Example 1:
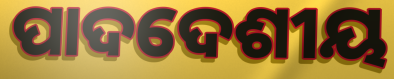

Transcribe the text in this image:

ପାଦଦେଶୀୟ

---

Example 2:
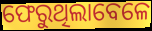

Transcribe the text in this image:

ଫେରୁଥିଲାବେଳେ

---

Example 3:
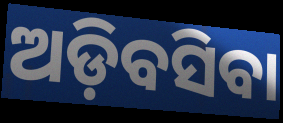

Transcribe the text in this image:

ଅଡ଼ିବସିବା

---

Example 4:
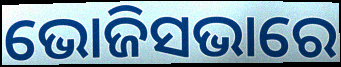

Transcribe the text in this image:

ଭୋଜିସଭାରେ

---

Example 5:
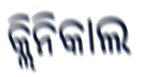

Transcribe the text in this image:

କ୍ଲିନିକାଲ